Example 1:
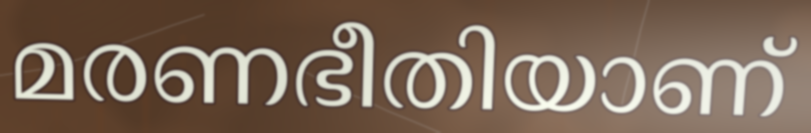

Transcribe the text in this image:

മരണഭീതിയാണ്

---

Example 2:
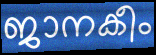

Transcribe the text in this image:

ജാനകീം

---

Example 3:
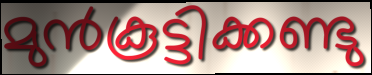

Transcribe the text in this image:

മുൻകൂട്ടിക്കണ്ടു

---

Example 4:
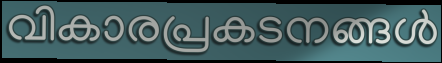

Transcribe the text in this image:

വികാരപ്രകടനങ്ങൾ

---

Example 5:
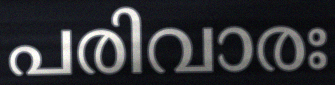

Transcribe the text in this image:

പരിവാരഃ